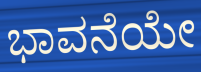
ಭಾವನೆಯೇ